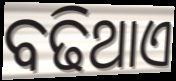
ବଢିଥାଏ